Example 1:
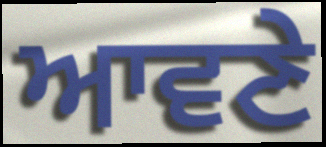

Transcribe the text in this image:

ਆਵਣੇ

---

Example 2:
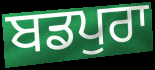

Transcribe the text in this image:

ਬਡਪੁਰਾ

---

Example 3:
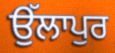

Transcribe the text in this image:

ਉੱਲਾਪੁਰ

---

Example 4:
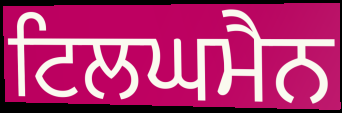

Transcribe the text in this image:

ਟਿਲਘਮੈਨ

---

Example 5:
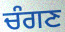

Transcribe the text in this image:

ਚੰਗਣ